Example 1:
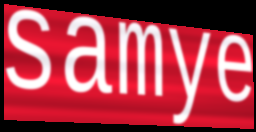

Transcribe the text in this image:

samye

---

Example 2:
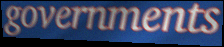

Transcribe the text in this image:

governments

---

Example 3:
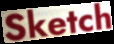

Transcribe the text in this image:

Sketch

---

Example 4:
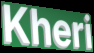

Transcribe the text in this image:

Kheri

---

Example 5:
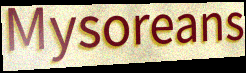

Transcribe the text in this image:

Mysoreans